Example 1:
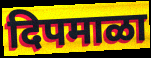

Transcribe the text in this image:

दिपमाळा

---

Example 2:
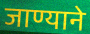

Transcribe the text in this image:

जाण्याने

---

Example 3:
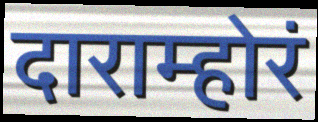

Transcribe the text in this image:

दाराम्होरं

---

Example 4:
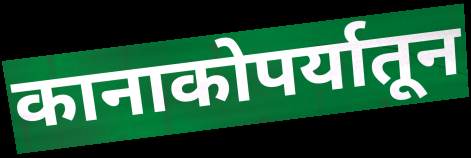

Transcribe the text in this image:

कानाकोपर्यातून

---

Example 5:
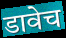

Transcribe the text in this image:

डावेच